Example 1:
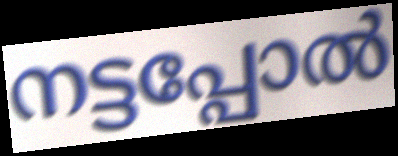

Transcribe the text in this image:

നട്ടപ്പോൽ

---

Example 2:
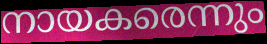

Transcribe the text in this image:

നായകരെന്നും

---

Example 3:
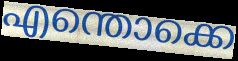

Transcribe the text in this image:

എന്തൊക്കെ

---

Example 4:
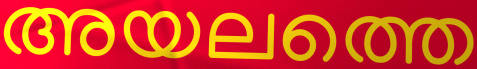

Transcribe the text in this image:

അയലത്തെ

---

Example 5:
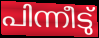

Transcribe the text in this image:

പിന്നീടു്